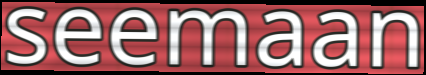
seemaan